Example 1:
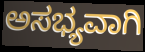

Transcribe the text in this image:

ಅಸಭ್ಯವಾಗಿ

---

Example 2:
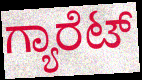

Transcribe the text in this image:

ಗ್ಯಾರೆಟ್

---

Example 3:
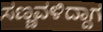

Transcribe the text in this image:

ಸಣ್ಣವಳಿದ್ದಾಗ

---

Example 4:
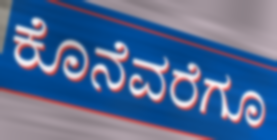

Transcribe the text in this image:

ಕೊನೆವರೆಗೂ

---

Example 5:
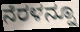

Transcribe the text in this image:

ನೆರಳನ್ನೂ